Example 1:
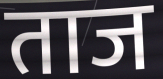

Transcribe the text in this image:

ताज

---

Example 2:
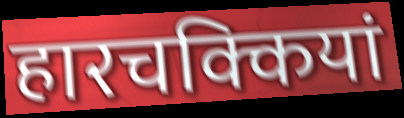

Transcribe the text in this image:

हारचक्कियां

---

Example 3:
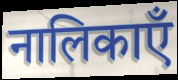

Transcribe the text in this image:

नालिकाएँ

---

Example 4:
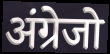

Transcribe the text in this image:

अंग्रेजो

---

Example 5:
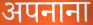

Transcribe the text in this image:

अपनाना